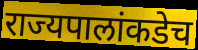
राज्यपालांकडेच